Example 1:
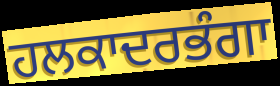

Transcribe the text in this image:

ਹਲਕਾਦਰਭੰਗਾ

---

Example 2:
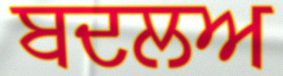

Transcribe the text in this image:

ਬਦਲਅ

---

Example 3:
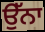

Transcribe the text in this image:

ਉੱਨਾ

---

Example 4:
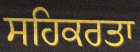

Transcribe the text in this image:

ਸਹਿਕਰਤਾ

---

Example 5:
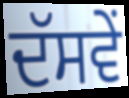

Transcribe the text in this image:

ਦੱਸਵੇਂ